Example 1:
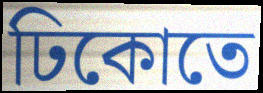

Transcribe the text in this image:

ঢিকোতে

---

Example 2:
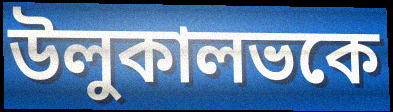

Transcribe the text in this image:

উলুকালভকে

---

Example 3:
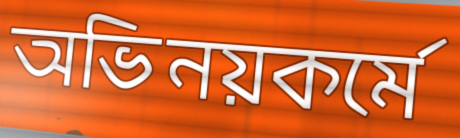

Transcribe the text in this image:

অভিনয়কর্মে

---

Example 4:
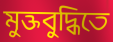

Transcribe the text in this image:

মুক্তবুদ্ধিতে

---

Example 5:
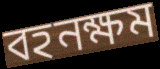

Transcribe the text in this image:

বহনক্ষম